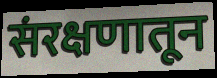
संरक्षणातून